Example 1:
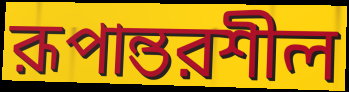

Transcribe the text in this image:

রূপান্তরশীল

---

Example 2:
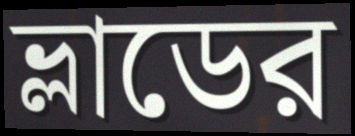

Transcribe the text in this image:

ভ্লাডের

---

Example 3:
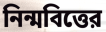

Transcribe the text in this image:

নিন্মবিত্তের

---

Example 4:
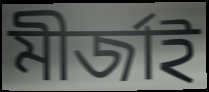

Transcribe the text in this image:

মীর্জাই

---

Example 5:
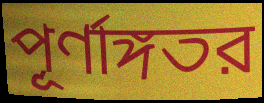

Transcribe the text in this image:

পূর্ণাঙ্গতর